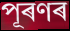
পূৰণৰ